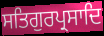
ਸਤਿਗੁਰਪ੍ਰਸਾਦਿ